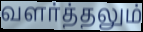
வளர்த்தலும்